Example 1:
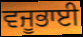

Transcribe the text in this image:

ਵਜੂਭਾਈ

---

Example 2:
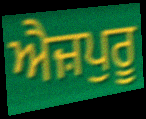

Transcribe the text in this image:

ਐਜ਼ਪੁਰੂ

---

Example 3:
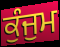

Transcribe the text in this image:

ਕੁੰਜੁਮ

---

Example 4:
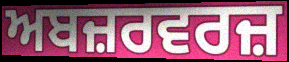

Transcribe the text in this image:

ਅਬਜ਼ਰਵਰਜ਼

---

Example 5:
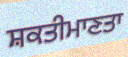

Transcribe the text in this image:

ਸ਼ਕਤੀਮਾਣਤਾ